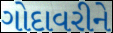
ગોદાવરીને